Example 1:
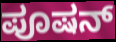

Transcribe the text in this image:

ಪೂಷನ್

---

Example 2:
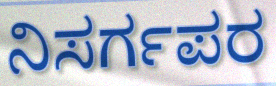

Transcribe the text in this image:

ನಿಸರ್ಗಪರ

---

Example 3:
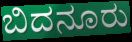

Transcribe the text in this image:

ಬಿದನೂರು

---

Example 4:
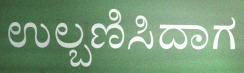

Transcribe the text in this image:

ಉಲ್ಬಣಿಸಿದಾಗ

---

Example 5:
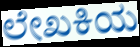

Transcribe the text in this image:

ಲೇಖಕಿಯ